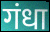
गंधा